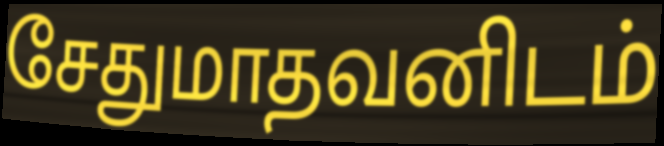
சேதுமாதவனிடம்